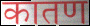
कातण